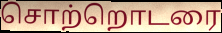
சொற்றொடரை